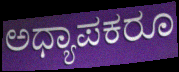
ಅಧ್ಯಾಪಕರೂ